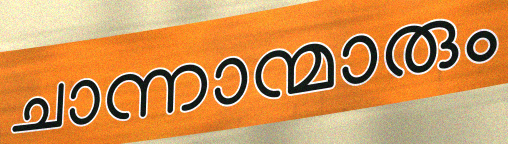
ചാന്നാന്മാരും